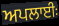
ਅਪਲਾਈਃ